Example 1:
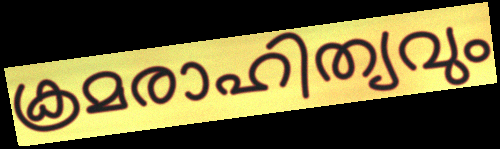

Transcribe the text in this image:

ക്രമരാഹിത്യവും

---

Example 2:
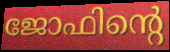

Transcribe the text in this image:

ജോഫിന്റെ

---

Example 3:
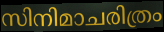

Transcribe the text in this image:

സിനിമാചരിത്രം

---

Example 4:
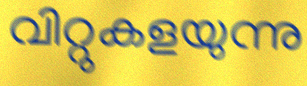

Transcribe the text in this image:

വിറ്റുകളയുന്നു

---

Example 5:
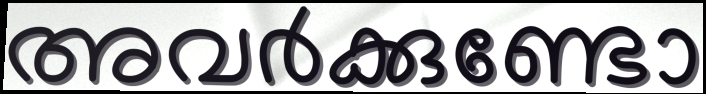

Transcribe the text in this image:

അവർക്കുണ്ടോ